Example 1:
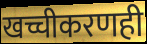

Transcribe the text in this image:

खच्चीकरणही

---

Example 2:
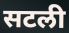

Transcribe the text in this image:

सटली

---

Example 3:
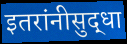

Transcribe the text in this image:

इतरांनीसुद्धा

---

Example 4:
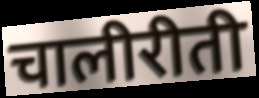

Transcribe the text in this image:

चालीरीती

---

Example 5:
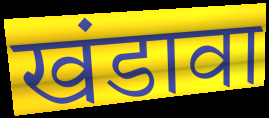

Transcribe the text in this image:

खंडावा